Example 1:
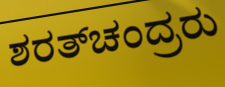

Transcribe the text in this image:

ಶರತ್‌ಚಂದ್ರರು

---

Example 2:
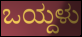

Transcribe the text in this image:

ಒಯ್ದಳು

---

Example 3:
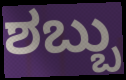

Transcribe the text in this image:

ಶಬ್ಬು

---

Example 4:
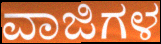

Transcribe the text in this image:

ವಾಜಿಗಳ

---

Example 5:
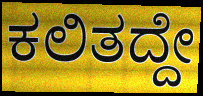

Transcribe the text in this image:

ಕಲಿತದ್ದೇ